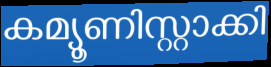
കമ്യൂണിസ്റ്റാക്കി